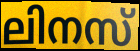
ലിനസ്